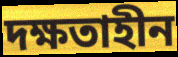
দক্ষতাহীন